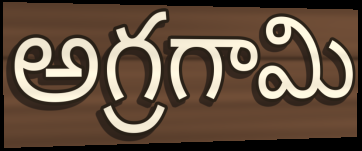
అగ్రగామి